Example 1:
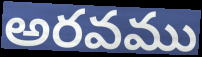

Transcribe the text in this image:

అరవము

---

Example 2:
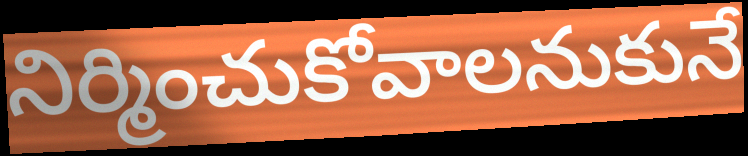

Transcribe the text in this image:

నిర్మించుకోవాలనుకునే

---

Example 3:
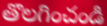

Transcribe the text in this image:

తొలగించండి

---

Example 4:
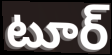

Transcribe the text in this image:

టూర్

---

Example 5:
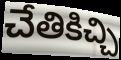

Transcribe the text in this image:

చేతికిచ్చి